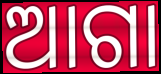
ଆଗା